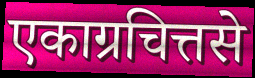
एकाग्रचित्तसे